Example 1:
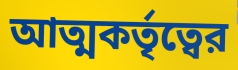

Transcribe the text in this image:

আত্মকর্তৃত্বের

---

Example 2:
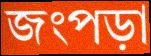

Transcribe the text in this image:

জংপড়া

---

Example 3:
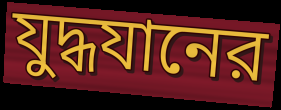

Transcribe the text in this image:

যুদ্ধযানের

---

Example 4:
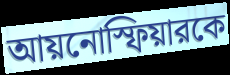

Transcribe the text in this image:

আয়নোস্ফিয়ারকে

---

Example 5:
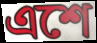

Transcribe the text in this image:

এশে